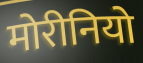
मोरीनियो